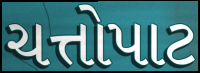
ચત્તોપાટ